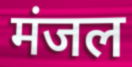
मंजल